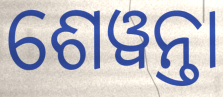
ଶେୱନ୍ତା